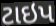
ટાઇપ